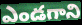
ఎండగాని